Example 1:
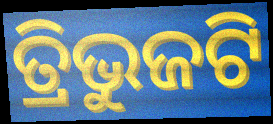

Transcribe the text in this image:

ତ୍ରିଭୁଜଟି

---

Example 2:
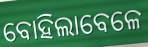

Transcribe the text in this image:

ବୋହିଲାବେଳେ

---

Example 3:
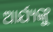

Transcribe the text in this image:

ଆର୍ଯ୍ୟଙ୍କୁ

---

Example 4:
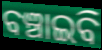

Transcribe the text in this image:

ବଞ୍ଚାଇବି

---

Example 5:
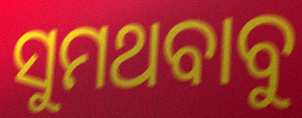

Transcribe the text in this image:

ସୁମଥବାବୁ